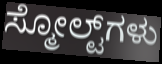
ಸ್ಮೋಲ್ಟ್‌ಗಳು